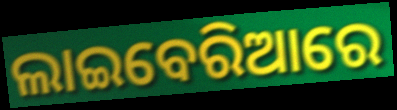
ଲାଇବେରିଆରେ